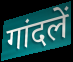
गांदलें